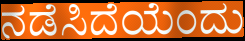
ನಡೆಸಿದೆಯೆಂದು